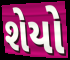
શેયો